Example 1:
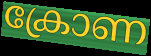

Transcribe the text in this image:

ക്രോണ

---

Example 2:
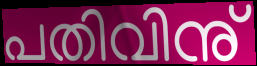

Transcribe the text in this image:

പതിവിനു്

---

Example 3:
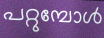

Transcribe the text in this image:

പറ്റുമ്പോൾ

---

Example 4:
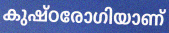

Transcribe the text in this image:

കുഷ്ഠരോഗിയാണ്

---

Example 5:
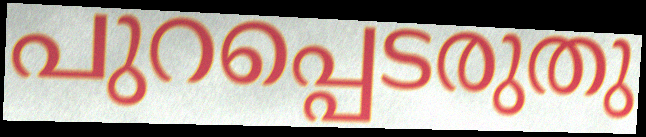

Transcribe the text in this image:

പുറപ്പെടരുതു